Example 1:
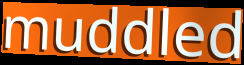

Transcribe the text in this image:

muddled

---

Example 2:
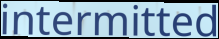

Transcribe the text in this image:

intermitted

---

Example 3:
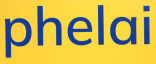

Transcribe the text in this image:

phelai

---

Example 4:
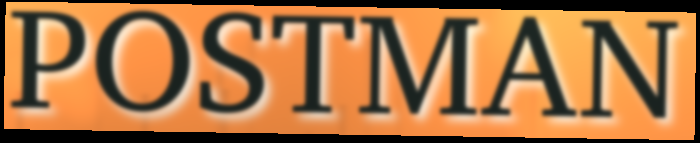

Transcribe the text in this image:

POSTMAN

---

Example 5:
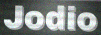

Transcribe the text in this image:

Jodio